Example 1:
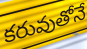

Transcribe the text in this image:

కరువుతోనే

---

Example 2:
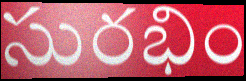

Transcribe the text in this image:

సురభిం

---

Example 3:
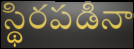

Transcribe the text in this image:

స్థిరపడినా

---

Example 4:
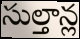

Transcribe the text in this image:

సుల్తాన్ల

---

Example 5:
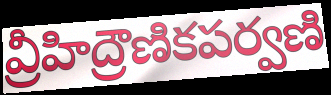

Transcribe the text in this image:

వ్రీహిద్రౌణికపర్వణి